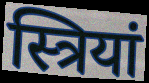
स्त्रियां